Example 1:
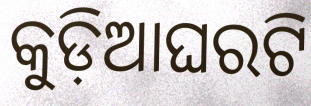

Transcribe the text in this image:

କୁଡ଼ିଆଘରଟି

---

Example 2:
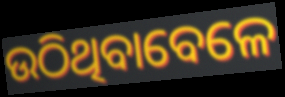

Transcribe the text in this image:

ଉଠିଥିବାବେଳେ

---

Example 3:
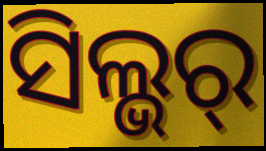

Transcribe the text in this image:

ସିଲ୍ଭର୍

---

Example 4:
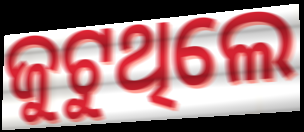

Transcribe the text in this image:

ଜୁଟୁଥିଲେ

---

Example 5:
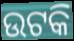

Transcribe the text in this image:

ଉଟକି